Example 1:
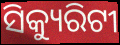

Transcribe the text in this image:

ସିକ୍ୟୁରିଟୀ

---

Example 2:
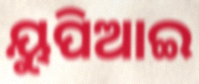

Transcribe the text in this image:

ୟୁପିଆଇ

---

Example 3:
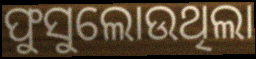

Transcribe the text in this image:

ଫୁସୁଲୋଉଥିଲା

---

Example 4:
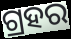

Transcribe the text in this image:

ଗ୍ରହର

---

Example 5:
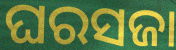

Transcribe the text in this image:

ଘରସଜା